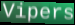
Vipers